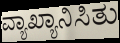
ವ್ಯಾಖ್ಯಾನಿಸಿತು